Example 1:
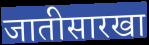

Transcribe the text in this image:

जातीसारखा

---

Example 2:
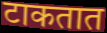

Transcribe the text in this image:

टाकतात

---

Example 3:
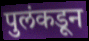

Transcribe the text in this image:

पुलंकडून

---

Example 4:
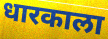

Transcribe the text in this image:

धारकाला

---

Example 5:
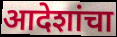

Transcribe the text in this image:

आदेशांचा